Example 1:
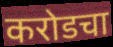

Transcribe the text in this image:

करोडचा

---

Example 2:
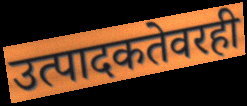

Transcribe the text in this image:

उत्पादकतेवरही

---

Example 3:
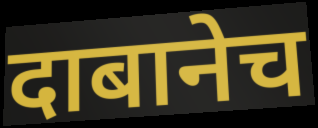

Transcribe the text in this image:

दाबानेच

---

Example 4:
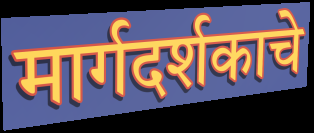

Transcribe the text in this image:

मार्गदर्शकाचे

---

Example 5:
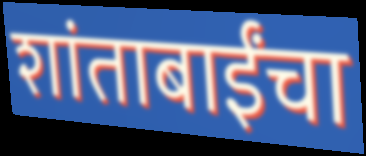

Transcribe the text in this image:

शांताबाईंचा